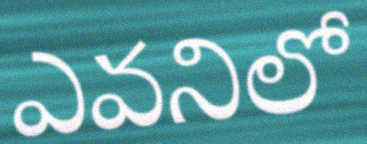
ఎవనిలో